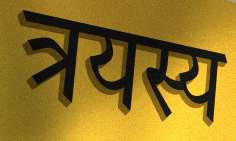
त्रयस्य